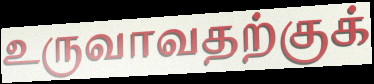
உருவாவதற்குக்